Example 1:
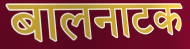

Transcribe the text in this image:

बालनाटक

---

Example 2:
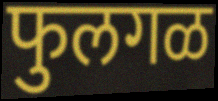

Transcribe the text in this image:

फुलगळ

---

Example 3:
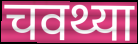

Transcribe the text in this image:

चवथ्या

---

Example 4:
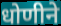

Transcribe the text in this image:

धोणीने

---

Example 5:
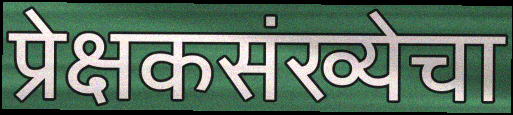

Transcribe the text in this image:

प्रेक्षकसंख्येचा